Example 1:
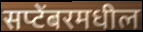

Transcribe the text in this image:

सप्टेंबरमधील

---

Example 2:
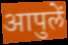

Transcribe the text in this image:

आपुलें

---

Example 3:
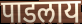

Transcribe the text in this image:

पाडलाय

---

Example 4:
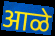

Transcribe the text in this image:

आळे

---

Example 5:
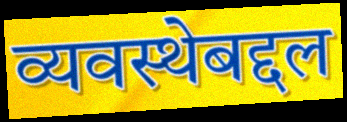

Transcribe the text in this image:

व्यवस्थेबद्दल